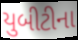
યુબીટીના